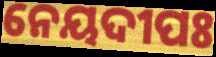
ନେୟଦୀପଃ